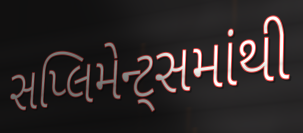
સપ્લિમેન્ટ્સમાંથી